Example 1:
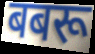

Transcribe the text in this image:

बबरू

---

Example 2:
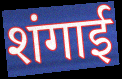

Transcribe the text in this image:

शंगाई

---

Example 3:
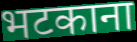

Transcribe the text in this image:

भटकाना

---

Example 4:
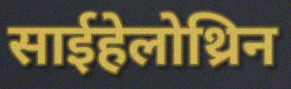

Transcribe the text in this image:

साईहेलोथ्रिन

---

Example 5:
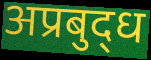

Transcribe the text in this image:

अप्रबुद्ध